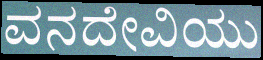
ವನದೇವಿಯು